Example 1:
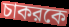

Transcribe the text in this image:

চাকরকে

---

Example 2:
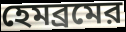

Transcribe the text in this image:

হেমব্রমের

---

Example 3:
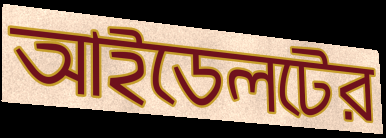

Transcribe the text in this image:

আইডেলটের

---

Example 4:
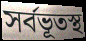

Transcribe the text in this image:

সর্বভূতস্থ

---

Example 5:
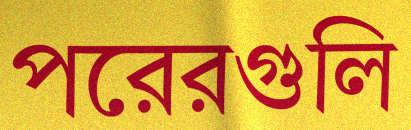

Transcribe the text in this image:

পরেরগুলি